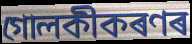
গোলকীকৰণৰ